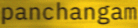
panchangam